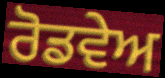
ਰੋਡਵੇਅ